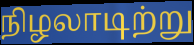
நிழலாடிற்று